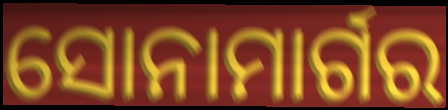
ସୋନାମାର୍ଗର